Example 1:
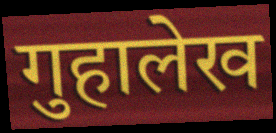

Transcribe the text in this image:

गुहालेख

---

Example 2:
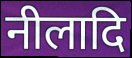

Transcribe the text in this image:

नीलादि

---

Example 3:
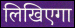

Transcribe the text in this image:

लिखिएगा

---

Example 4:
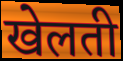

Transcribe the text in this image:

खेलती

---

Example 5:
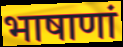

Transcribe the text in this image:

भाषाणां